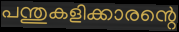
പന്തുകളിക്കാരന്റെ